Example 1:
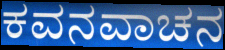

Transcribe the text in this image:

ಕವನವಾಚನ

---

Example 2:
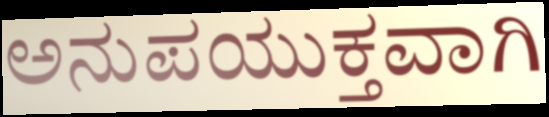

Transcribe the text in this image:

ಅನುಪಯುಕ್ತವಾಗಿ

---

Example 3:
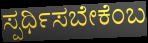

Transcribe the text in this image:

ಸ್ಪರ್ಧಿಸಬೇಕೆಂಬ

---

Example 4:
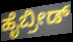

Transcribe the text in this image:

ಹೈಬ್ರೀಡ್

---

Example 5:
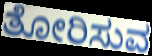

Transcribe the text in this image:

ತೋರಿಸುವ